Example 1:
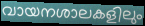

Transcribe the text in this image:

വായനശാലകളിലും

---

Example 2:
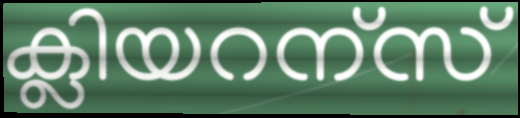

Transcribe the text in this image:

ക്ലിയറന്സ്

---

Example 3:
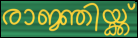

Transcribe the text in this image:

രാജ്ഞിയ്ക്ക്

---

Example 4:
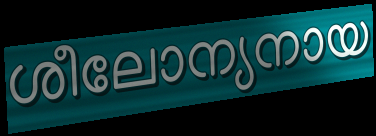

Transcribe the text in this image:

ശീലോന്യനായ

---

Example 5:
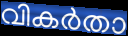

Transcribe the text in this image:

വികർതാ